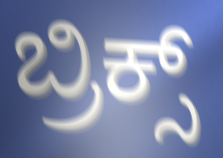
ಬ್ರಿಕ್ಸ್